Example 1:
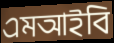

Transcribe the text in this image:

এমআইবি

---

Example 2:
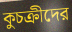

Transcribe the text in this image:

কুচক্রীদের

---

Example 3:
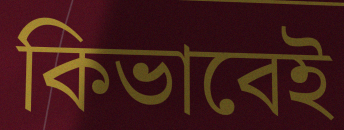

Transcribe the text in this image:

কিভাবেই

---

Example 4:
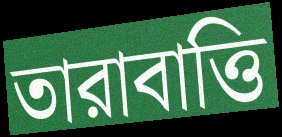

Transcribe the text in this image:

তারাবাত্তি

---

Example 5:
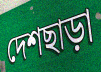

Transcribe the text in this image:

দেশছাড়া